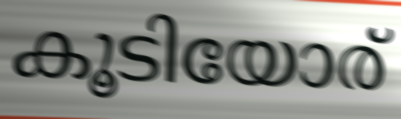
കൂടിയോര്